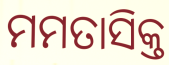
ମମତାସିକ୍ତ